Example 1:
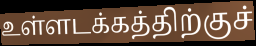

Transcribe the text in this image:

உள்ளடக்கத்திற்குச்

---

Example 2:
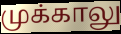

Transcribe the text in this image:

முக்காலு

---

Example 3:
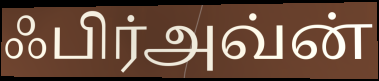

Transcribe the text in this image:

ஃபிர்அவ்ன்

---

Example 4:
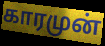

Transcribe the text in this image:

காரமுன்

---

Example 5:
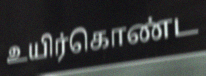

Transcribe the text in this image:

உயிர்கொண்ட